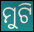
ମୁଟି